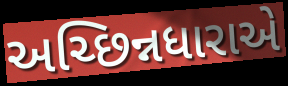
અચ્છિન્નધારાએ